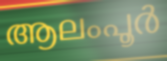
ആലംപൂർ